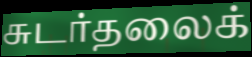
சுடர்தலைக்